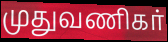
முதுவணிகர்